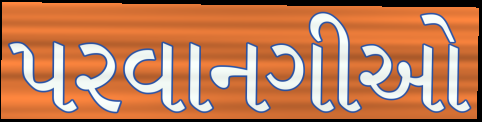
પરવાનગીઓ